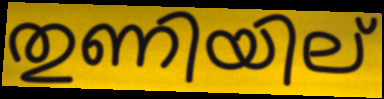
തുണിയില്